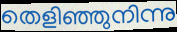
തെളിഞ്ഞുനിന്നു